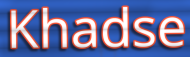
Khadse